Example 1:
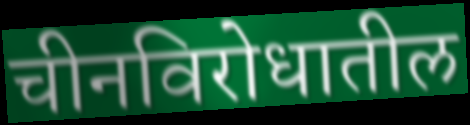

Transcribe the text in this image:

चीनविरोधातील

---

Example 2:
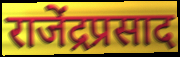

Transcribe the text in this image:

राजेंद्रप्रसाद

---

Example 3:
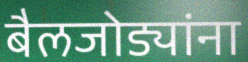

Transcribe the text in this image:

बैलजोड्यांना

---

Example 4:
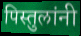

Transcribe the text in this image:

पिस्तुलांनी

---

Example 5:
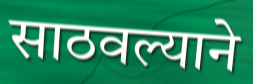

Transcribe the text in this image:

साठवल्याने